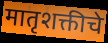
मातृशक्तीचे